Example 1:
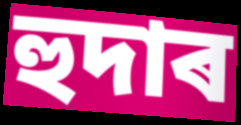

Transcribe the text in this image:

হুদাৰ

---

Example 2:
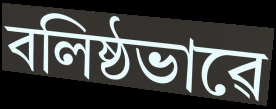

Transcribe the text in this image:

বলিষ্ঠভাৱে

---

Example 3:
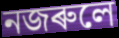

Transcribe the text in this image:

নজৰুলে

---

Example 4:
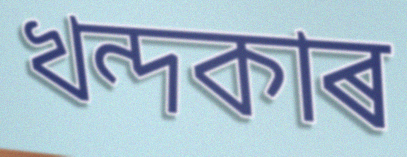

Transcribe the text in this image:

খন্দকাৰ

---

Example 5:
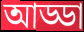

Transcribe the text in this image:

আড্ডা